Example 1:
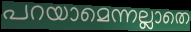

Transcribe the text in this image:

പറയാമെന്നല്ലാതെ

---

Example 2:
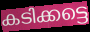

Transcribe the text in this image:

കടിക്കട്ടെ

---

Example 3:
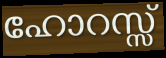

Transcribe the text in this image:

ഹോറസ്സ്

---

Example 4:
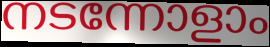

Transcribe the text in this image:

നടന്നോളാം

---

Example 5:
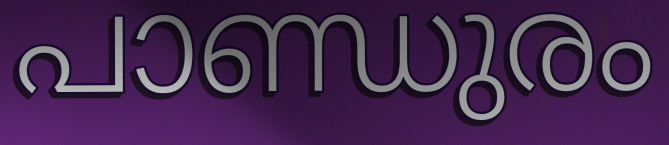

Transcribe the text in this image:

പാണ്ഡുരം